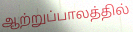
ஆற்றுப்பாலத்தில்